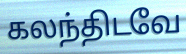
கலந்திடவே